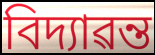
বিদ্যাৱন্ত